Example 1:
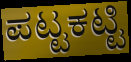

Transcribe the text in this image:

ಪಟ್ಟಕಟ್ಟಿ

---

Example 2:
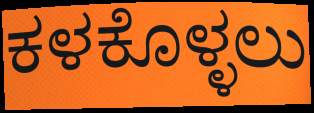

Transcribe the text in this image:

ಕಳಕೊಳ್ಳಲು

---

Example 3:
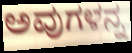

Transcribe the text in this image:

ಅವುಗಳನ್ನ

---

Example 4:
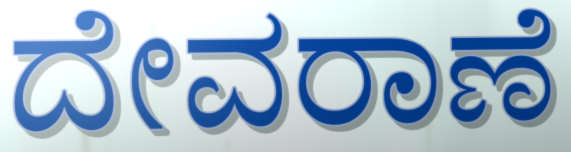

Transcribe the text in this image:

ದೇವರಾಣೆ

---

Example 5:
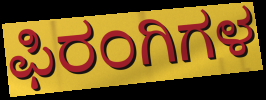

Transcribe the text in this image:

ಫಿರಂಗಿಗಳ